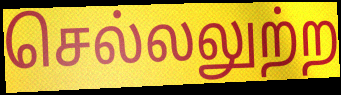
செல்லலுற்ற